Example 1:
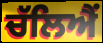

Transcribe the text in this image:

ਚੱਲਿਐਂ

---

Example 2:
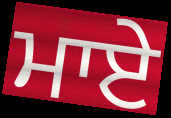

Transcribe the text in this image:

ਮਾਏ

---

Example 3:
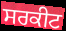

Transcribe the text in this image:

ਸਰਕੀਟ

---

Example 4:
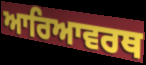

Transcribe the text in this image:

ਆਰਿਆਵਰਥ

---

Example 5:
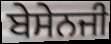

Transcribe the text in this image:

ਬੇਸੇਨਜੀ